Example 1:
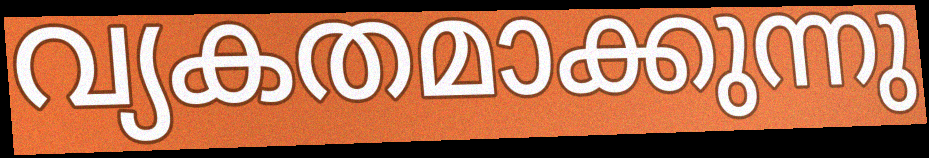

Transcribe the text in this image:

വ്യകതമാക്കുന്നു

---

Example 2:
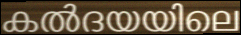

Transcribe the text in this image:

കൽദയയിലെ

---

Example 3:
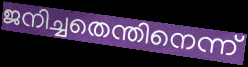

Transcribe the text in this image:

ജനിച്ചതെന്തിനെന്ന്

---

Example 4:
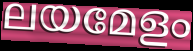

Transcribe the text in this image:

ലയമേളം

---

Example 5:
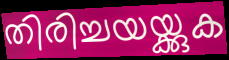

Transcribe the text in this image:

തിരിച്ചയയ്ക്കുക